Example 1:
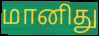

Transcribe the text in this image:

மானிது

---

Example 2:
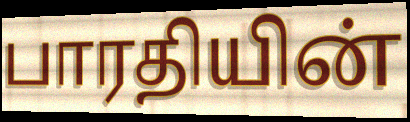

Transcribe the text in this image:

பாரதியின்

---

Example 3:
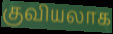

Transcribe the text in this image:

குவியலாக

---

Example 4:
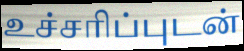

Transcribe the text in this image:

உச்சரிப்புடன்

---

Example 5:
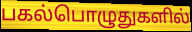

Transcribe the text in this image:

பகல்பொழுதுகளில்